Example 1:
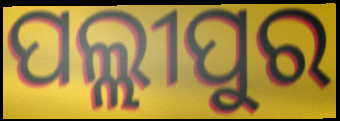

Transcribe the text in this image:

ପଲ୍ଲୀପୁର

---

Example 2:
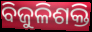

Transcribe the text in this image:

ବିଜୁଳିଶକ୍ତି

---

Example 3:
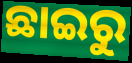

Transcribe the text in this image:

ଛାଇରୁ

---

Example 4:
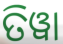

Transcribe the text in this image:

ତିୱା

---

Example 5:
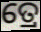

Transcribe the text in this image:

ତ୍ରେ